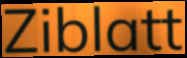
Ziblatt